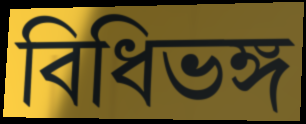
বিধিভঙ্গ